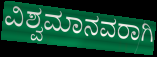
ವಿಶ್ವಮಾನವರಾಗಿ